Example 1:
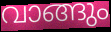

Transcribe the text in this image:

വാങ്ങും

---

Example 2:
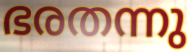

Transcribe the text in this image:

ഭരതന്നു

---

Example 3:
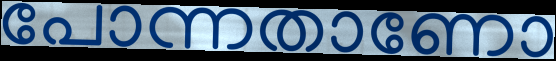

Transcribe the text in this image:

പോന്നതാണോ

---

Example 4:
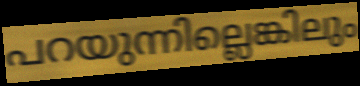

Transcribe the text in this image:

പറയുന്നില്ലെങ്കിലും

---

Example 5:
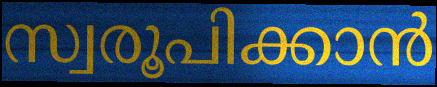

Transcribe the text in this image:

സ്വരൂപിക്കാൻ